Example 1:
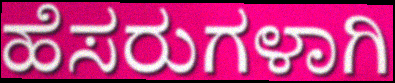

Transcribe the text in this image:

ಹೆಸರುಗಳಾಗಿ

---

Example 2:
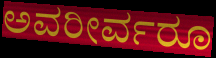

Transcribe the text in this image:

ಅವರೀರ್ವರೂ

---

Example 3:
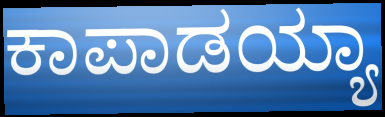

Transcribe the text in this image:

ಕಾಪಾಡಯ್ಯಾ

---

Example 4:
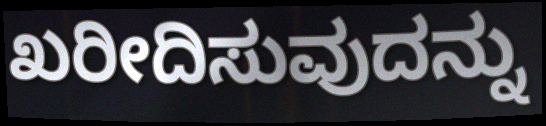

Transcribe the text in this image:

ಖರೀದಿಸುವುದನ್ನು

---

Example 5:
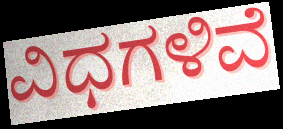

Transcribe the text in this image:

ವಿಧಗಳಿವೆ